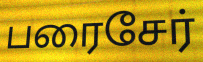
பரைசேர்